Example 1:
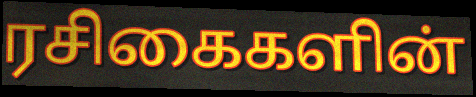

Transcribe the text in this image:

ரசிகைகளின்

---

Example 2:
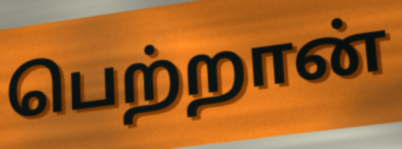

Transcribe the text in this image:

பெற்றான்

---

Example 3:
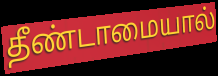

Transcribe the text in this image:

தீண்டாமையால்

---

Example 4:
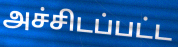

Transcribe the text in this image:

அச்சிடப்பட்ட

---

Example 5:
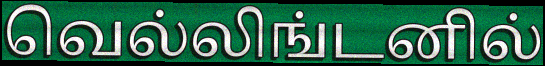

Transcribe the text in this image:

வெல்லிங்டனில்